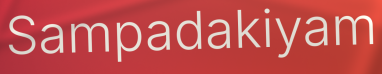
Sampadakiyam